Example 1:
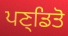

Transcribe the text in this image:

ਪਣ੍ਡਿਤੋ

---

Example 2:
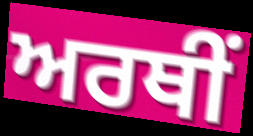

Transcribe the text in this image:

ਅਰਥੀਂ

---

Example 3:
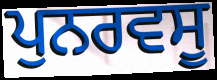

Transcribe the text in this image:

ਪੁਨਰਵਸੂ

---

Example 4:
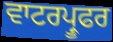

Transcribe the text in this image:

ਵਾਟਰਪ੍ਰੂਫਰ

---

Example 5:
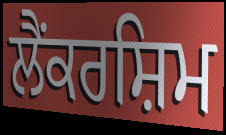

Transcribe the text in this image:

ਲੈਂਕਰਸ਼ਿਮ